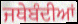
ਜਥੇਬੰਦੀਆਂ